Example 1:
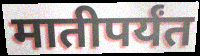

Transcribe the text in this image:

मातीपर्यंत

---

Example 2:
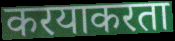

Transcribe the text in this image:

करयाकरता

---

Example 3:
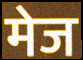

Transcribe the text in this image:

मेज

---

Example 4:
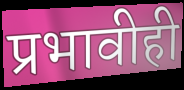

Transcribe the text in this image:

प्रभावीही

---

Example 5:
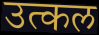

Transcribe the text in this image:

उत्कल